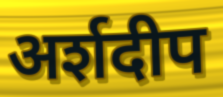
अर्शदीप